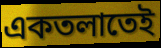
একতলাতেই